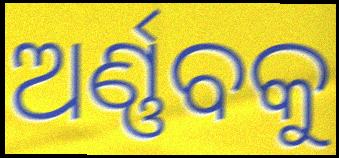
ଅର୍ଣ୍ଣବକୁ